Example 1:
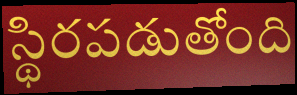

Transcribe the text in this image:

స్థిరపడుతోంది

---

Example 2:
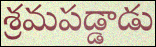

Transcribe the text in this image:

శ్రమపడ్డాడు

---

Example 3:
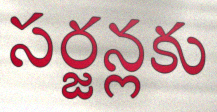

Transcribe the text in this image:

సర్జన్లకు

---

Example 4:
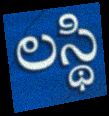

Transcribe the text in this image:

లస్థి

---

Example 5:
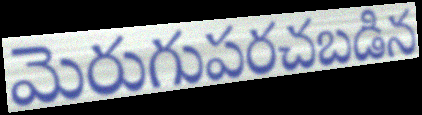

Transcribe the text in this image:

మెరుగుపరచబడిన